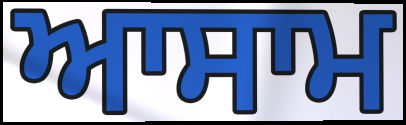
ਆਸਾਮ